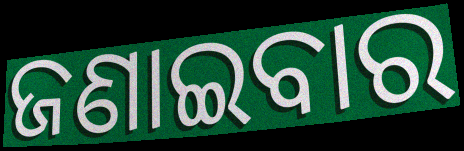
ଜଣାଇବାର